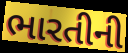
ભારતીની